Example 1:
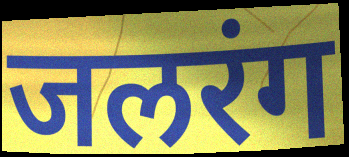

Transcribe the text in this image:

जलरंग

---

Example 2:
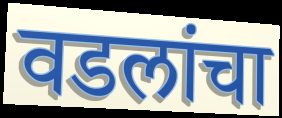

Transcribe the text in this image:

वडलांचा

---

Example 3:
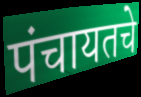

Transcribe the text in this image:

पंचायतचे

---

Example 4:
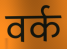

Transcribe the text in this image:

वर्क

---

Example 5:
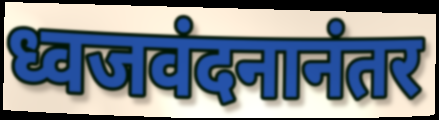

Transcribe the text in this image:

ध्वजवंदनानंतर